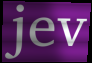
jev